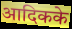
आदिकके